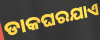
ଡାକଘରଯାଏ